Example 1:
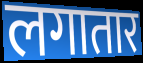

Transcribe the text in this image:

लगातार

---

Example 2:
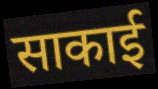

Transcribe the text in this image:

साकाई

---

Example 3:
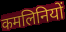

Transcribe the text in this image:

कमलिनियों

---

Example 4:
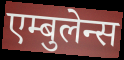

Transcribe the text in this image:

एम्बुलेन्स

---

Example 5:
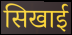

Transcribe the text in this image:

सिखाई